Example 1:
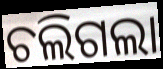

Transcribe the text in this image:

ଚଲିଗଲା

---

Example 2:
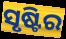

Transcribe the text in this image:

ସୃଷ୍ଟିର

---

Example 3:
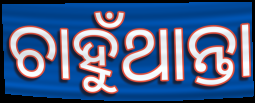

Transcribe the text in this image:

ଚାହୁଁଥାନ୍ତା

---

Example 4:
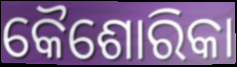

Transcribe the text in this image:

କୈଶୋରିକା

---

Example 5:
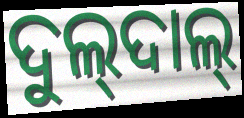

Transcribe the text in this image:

ଦୁଲ୍‍ଦାଲ୍